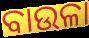
ବାଉଳା